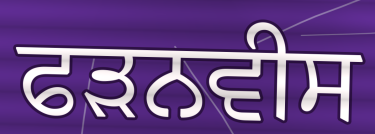
ਫੜਨਵੀਸ